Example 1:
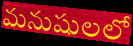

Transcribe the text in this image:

మనుషులలో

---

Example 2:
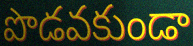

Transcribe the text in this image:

పొడవకుండా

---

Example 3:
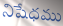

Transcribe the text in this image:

నిషేధము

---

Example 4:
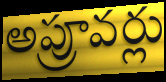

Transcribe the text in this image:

అప్రూవర్లు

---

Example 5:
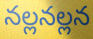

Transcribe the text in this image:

నల్లనల్లన